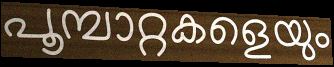
പൂമ്പാറ്റകളെയും